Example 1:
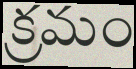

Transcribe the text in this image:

క్రమం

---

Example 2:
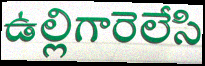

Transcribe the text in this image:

ఉల్లిగారెలేసి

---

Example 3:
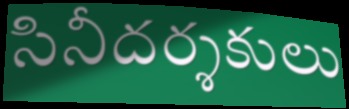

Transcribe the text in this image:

సినీదర్శకులు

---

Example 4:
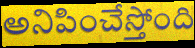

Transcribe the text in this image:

అనిపించేస్తోంది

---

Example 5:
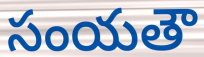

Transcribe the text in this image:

సంయతౌ